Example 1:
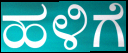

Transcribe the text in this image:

ಹಳಿಗೆ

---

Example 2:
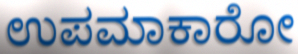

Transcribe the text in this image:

ಉಪಮಾಕಾರೋ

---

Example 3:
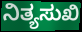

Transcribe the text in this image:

ನಿತ್ಯಸುಖಿ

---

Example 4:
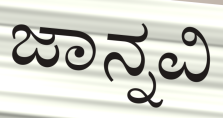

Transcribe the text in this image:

ಜಾನ್ನವಿ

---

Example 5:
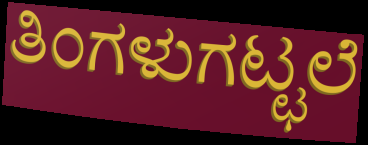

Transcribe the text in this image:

ತಿಂಗಳುಗಟ್ಟಲೆ